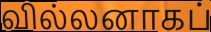
வில்லனாகப்